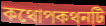
কথোপকথনটি